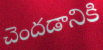
చెందడానికి